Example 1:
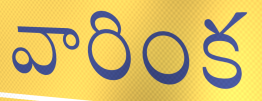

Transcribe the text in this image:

వారింక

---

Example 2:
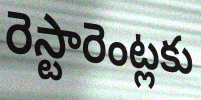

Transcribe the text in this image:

రెస్టారెంట్లకు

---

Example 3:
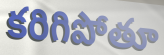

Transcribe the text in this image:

కరిగిపోతూ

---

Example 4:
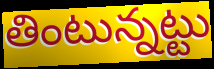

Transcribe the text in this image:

తింటున్నట్టు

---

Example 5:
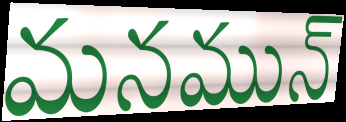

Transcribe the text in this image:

మనమున్